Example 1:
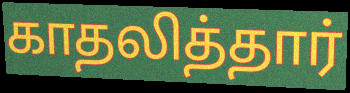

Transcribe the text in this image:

காதலித்தார்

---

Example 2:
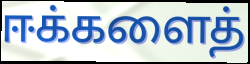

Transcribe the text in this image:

ஈக்களைத்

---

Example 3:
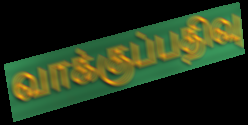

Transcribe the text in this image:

வாக்குப்பதிவு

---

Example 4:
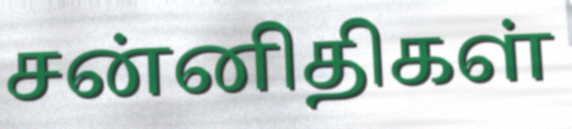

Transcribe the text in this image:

சன்னிதிகள்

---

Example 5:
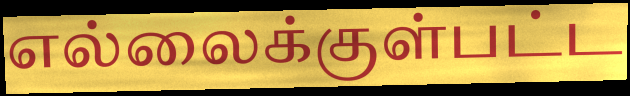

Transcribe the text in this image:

எல்லைக்குள்பட்ட